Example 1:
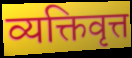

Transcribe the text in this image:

व्यक्तिवृत्त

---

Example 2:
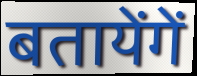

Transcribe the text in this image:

बतायेंगें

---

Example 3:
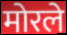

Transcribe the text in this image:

मोरले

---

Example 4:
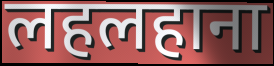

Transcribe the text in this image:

लहलहाना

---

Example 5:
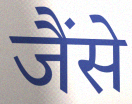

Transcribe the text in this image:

जैंसे